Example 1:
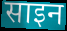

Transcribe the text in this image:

साइन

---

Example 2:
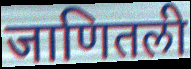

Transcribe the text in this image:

जाणितली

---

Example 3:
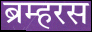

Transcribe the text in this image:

ब्रम्हरस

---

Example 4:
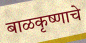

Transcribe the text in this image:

बाळकृष्णाचे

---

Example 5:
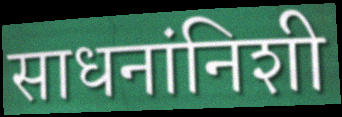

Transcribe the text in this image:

साधनांनिशी